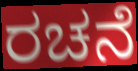
ರಚನೆ